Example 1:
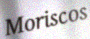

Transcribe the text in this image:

Moriscos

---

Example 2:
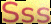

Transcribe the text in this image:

Sss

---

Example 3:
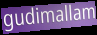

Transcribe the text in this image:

gudimallam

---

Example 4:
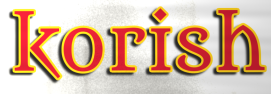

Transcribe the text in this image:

korish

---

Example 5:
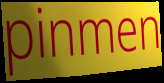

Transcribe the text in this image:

pinmen